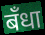
बँधा